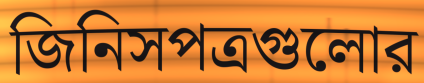
জিনিসপত্রগুলোর